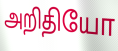
அறிதியோ